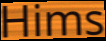
Hims